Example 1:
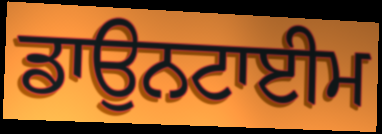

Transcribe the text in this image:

ਡਾਉਨਟਾਈਮ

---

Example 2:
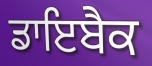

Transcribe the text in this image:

ਡਾਇਬੈਕ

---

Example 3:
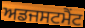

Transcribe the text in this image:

ਅਡਜਸਟਮੈਂਟ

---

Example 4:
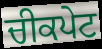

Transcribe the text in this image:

ਚੀਕਪੇਟ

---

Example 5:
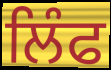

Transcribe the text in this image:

ਲਿੰਫ